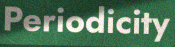
Periodicity